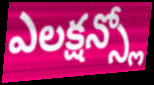
ఎలక్షన్స్లో